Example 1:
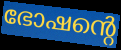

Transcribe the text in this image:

ഭോഷന്റെ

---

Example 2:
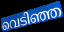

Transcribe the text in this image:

വെടിഞ്ഞ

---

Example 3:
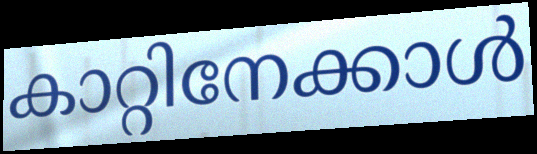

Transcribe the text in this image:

കാറ്റിനേക്കാൾ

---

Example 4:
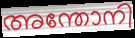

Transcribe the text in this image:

അന്തോനി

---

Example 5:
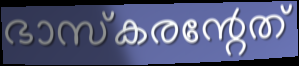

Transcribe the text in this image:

ഭാസ്കരന്റേത്